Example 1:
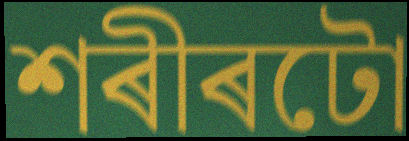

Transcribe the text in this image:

শৰীৰটো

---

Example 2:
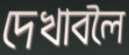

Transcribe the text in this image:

দেখাবলৈ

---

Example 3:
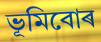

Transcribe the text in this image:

ভূমিবোৰ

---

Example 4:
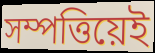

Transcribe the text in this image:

সম্পত্তিয়েই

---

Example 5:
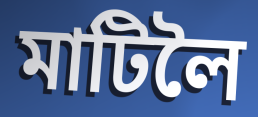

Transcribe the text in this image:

মাটিলৈ